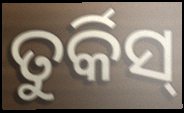
ତୁର୍କିସ୍